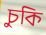
চুকি